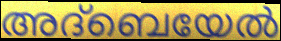
അദ്ബെയേൽ